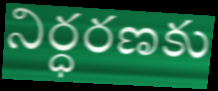
నిర్ధరణకు